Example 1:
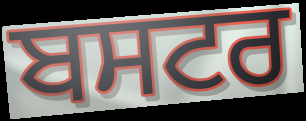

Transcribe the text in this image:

ਬਸਟਰ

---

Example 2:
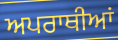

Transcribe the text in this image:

ਅਪਰਾਥੀਆਂ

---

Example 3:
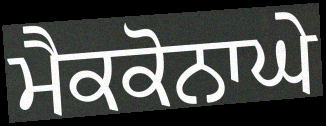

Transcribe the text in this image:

ਮੈਕਕੋਨਾਘੇ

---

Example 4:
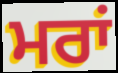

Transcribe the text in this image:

ਮਰਾਂ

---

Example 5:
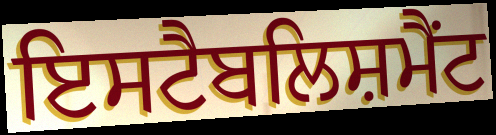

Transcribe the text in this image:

ਇਸਟੈਬਲਿਸ਼ਮੈਂਟ